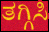
ತಗ್ಗಿಸಿ